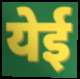
येई